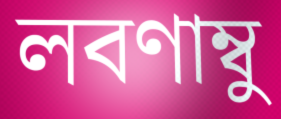
লবণাম্বু